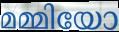
മമ്മിയോ